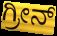
ಗ್ರೀನ್